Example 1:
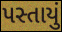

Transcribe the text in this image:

પસ્તાયું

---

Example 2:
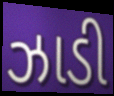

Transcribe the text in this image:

ઝાડી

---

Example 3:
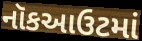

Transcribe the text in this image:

નૉકઆઉટમાં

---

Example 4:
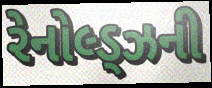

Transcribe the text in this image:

રેનોલ્ડ્ઝની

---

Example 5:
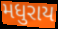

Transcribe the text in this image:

મધુરાય